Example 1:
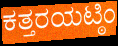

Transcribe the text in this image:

ಕತ್ತರಯಟ್ಠಿಂ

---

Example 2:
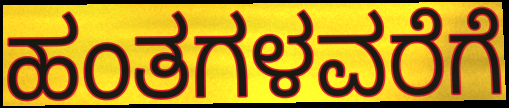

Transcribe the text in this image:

ಹಂತಗಳವರೆಗೆ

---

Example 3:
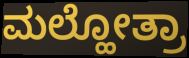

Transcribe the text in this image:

ಮಲ್ಹೋತ್ರಾ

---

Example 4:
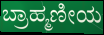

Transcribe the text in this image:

ಬ್ರಾಹ್ಮಣೀಯ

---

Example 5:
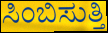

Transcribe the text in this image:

ಸಿಂಬಿಸುತ್ತಿ